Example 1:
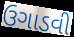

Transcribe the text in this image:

ઉગાડવી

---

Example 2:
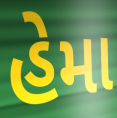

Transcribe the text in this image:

હેમા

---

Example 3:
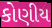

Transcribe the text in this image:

કોણીય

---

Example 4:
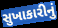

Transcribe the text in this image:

સુખાકારીનું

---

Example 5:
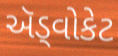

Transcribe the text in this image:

ઍડ્વોકેટ